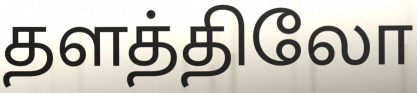
தளத்திலோ